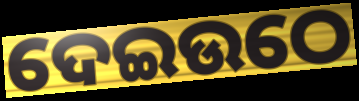
ଦେଇଉଠେ